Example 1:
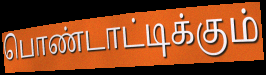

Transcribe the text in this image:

பொண்டாட்டிக்கும்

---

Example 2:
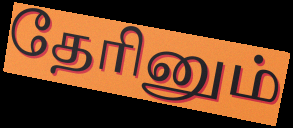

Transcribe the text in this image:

தேரினும்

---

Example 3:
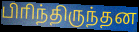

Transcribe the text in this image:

பிரிந்திருந்தன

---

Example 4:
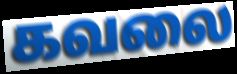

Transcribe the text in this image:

கவலை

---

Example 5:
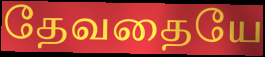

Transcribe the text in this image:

தேவதையே